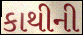
કાથીની